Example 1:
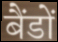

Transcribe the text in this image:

बैंडों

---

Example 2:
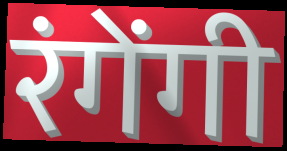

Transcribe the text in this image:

रंगेंगी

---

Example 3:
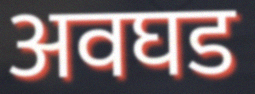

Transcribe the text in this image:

अवघड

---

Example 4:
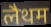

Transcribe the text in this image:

लैथम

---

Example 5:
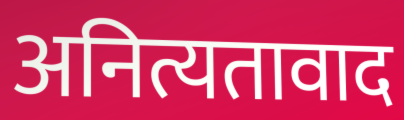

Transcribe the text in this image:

अनित्यतावाद